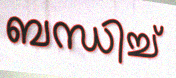
ബന്ധിച്ച്